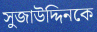
সুজাউদ্দিনকে